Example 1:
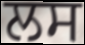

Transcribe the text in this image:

ਲਸ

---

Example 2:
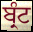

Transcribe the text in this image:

ਬ੍ਰੰਟ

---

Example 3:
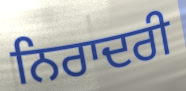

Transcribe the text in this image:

ਨਿਰਾਦਰੀ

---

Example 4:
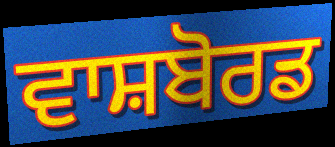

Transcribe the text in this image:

ਵਾਸ਼ਬੋਰਡ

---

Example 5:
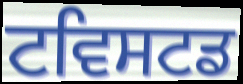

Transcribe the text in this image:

ਟਵਿਸਟਡ